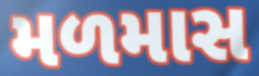
મળમાસ